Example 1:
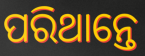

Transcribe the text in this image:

ପରିଥାନ୍ତେ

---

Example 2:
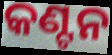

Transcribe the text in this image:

କଣ୍ଟନ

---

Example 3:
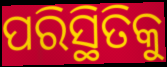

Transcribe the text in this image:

ପରିସ୍ଥିତିକୁ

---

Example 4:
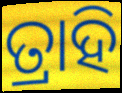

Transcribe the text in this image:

ତ୍ରାହି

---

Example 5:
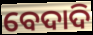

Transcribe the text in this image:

ବେଦାଦି